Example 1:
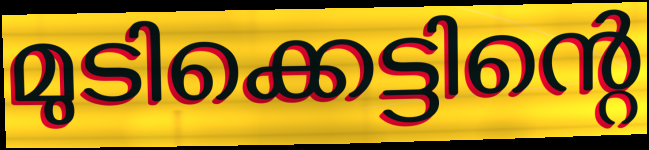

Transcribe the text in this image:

മുടിക്കെട്ടിന്റെ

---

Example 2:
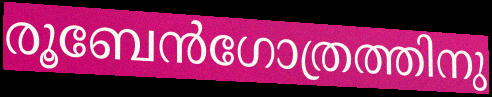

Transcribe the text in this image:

രൂബേൻഗോത്രത്തിനു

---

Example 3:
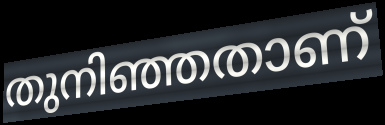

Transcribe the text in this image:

തുനിഞ്ഞതാണ്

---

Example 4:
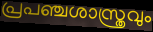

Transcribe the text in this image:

പ്രപഞ്ചശാസ്ത്രവും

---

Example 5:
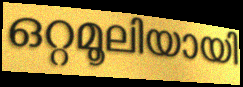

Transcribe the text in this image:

ഒറ്റമൂലിയായി